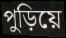
পুড়িয়ে